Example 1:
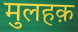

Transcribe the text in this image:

मुलहक़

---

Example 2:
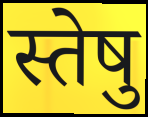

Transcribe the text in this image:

स्तेषु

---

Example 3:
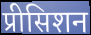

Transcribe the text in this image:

प्रीसिशन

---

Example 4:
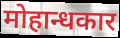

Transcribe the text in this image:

मोहान्धकार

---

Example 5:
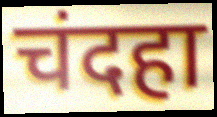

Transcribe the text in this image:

चंदहा